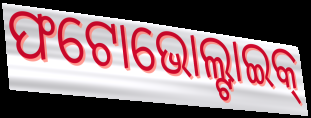
ଫଟୋଭୋଲ୍ଟାଇକ୍